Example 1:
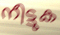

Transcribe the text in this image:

നീട്ടുക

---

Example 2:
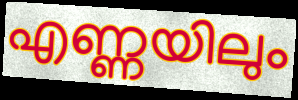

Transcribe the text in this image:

എണ്ണയിലും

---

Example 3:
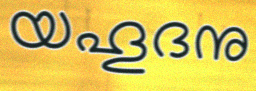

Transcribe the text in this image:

യഹൂദനു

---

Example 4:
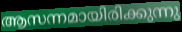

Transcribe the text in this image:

ആസന്നമായിരിക്കുന്നു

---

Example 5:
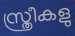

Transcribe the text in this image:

സ്ത്രീകളു